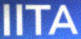
IITA